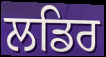
ਲਡਿਰ